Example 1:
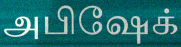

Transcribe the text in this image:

அபிஷேக்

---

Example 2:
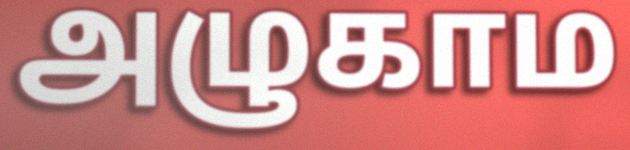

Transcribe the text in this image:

அழுகாம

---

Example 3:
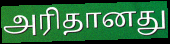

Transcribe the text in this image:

அரிதானது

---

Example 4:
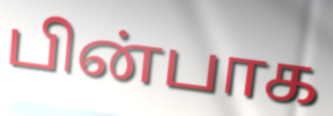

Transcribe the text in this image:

பின்பாக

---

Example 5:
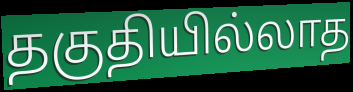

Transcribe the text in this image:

தகுதியில்லாத